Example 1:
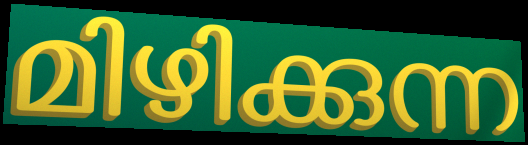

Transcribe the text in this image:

മിഴിക്കുന്ന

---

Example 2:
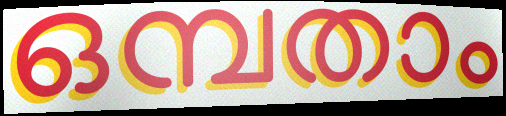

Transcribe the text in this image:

ഒമ്പതാം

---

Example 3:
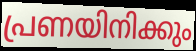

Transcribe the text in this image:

പ്രണയിനിക്കും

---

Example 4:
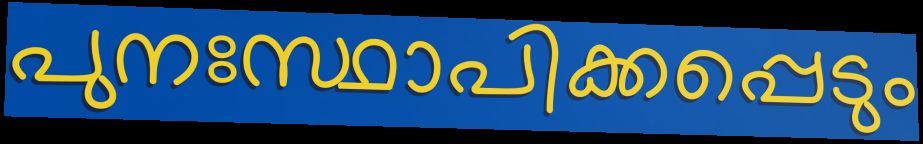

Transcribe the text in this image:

പുനഃസ്ഥാപിക്കപ്പെടും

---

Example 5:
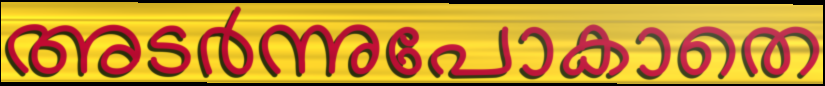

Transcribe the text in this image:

അടർന്നുപോകാതെ